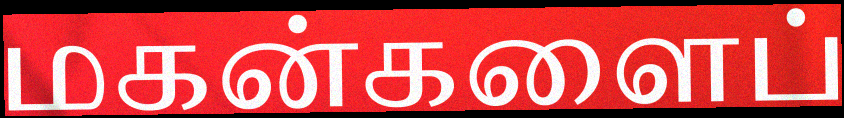
மகன்களைப்